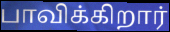
பாவிக்கிறார்